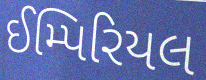
ઈમ્પિરિયલ